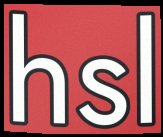
hsl